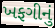
ખફગીનું